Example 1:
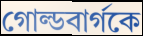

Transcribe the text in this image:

গোল্ডবার্গকে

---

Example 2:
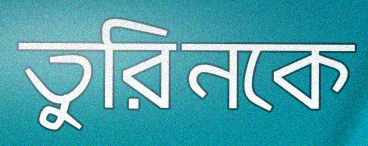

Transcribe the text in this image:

তুরিনকে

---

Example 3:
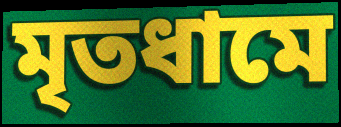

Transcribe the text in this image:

মৃতধামে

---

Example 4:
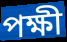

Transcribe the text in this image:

পক্ষী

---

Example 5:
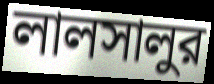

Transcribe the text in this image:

লালসালুর